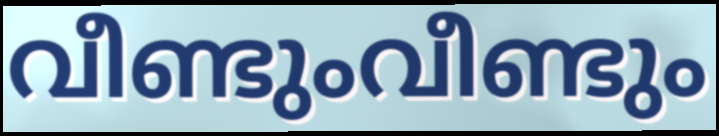
വീണ്ടുംവീണ്ടും